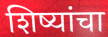
शिष्यांचा